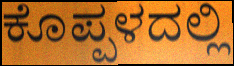
ಕೊಪ್ಪಳದಲ್ಲಿ